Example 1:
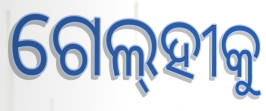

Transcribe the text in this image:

ଗେଲ୍‌ହୀକୁ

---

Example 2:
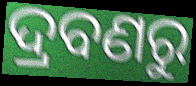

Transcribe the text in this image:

ଦ୍ରବଣରୁ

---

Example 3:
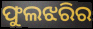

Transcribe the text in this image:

ଫୁଲଝରିର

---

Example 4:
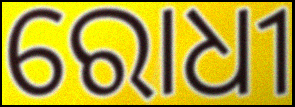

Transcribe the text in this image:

ରୋଧୀ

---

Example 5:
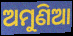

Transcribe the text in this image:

ଅମୁଣିଆ